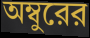
অম্বুরের